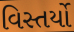
વિસ્તર્યો